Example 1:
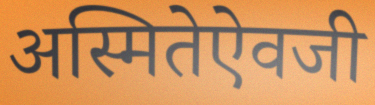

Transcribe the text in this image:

अस्मितेऐवजी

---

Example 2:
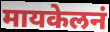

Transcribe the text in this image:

मायकेलनं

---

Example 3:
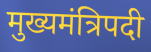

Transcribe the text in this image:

मुख्यमंत्रिपदी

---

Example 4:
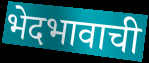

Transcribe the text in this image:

भेदभावाची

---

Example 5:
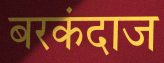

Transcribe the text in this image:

बरकंदाज